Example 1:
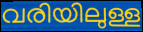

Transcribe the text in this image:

വരിയിലുള്ള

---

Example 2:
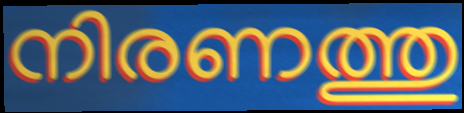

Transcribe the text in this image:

നിരണത്തു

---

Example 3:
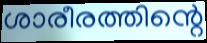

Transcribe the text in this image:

ശാരീരത്തിന്റെ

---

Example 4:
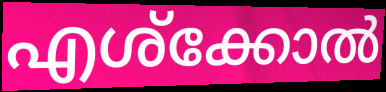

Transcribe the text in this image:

എശ്ക്കോൽ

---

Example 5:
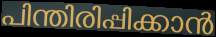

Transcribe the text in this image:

പിന്തിരിപ്പിക്കാൻ